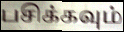
பசிக்கவும்